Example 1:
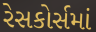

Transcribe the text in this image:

રેસકોર્સમાં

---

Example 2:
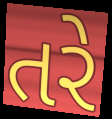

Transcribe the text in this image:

તરે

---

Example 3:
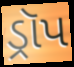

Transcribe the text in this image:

ડ્રૉપ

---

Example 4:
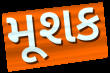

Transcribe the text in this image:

મૂશક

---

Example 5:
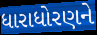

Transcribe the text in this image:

ધારાધોરણને